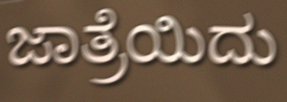
ಜಾತ್ರೆಯಿದು